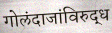
गोलंदाजांविरुद्ध